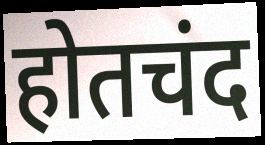
होतचंद